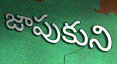
జాపుకుని